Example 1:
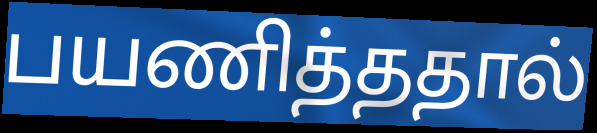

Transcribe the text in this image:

பயணித்ததால்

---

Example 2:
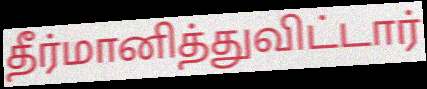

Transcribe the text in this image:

தீர்மானித்துவிட்டார்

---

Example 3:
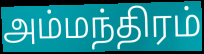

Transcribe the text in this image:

அம்மந்திரம்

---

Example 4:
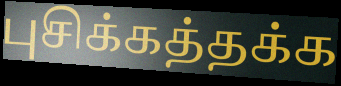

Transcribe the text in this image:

புசிக்கத்தக்க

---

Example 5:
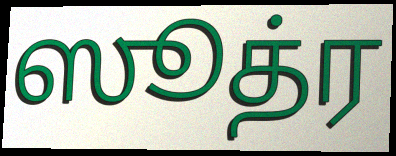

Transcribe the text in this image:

ஸூத்ர